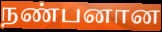
நண்பனான